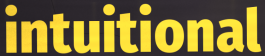
intuitional